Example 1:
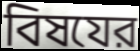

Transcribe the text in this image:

বিষযের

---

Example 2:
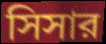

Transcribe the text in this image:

সিসার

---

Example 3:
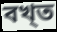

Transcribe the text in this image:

বখ্ত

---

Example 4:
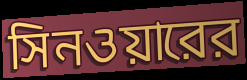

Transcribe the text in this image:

সিনওয়ারের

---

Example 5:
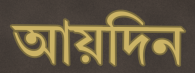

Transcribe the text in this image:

আয়দিন